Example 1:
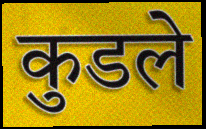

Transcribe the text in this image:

कुडले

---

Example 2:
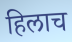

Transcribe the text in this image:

हिलाच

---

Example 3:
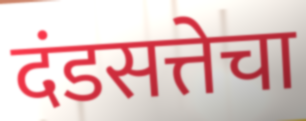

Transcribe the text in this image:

दंडसत्तेचा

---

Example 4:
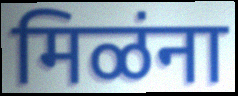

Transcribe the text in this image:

मिळंना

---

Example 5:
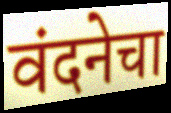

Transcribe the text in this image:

वंदनेचा